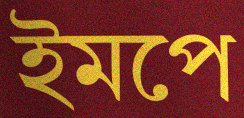
ইমপে